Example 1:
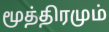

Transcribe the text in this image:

மூத்திரமும்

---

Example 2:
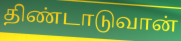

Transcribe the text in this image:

திண்டாடுவான்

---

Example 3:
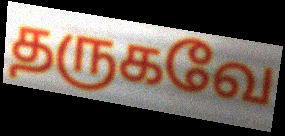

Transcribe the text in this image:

தருகவே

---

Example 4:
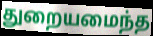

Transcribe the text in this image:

துறையமைந்த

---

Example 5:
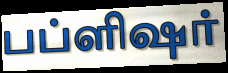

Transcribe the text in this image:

பப்ளிஷர்